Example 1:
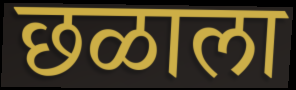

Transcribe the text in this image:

छळाला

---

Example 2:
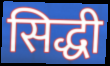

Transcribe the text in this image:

सिद्धी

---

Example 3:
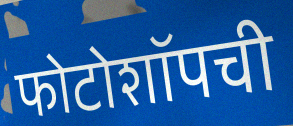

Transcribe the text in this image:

फोटोशॉपची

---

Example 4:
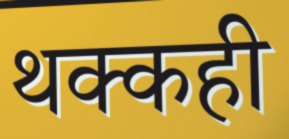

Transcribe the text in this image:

थक्कही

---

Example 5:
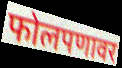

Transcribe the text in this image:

फोलपणावर